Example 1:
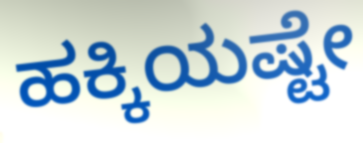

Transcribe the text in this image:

ಹಕ್ಕಿಯಷ್ಟೇ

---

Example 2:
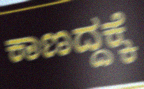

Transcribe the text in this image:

ಕಾಣದ್ದಕ್ಕೆ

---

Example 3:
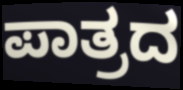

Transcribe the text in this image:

ಪಾತ್ರದ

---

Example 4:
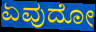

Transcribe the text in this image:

ಏವುದೋ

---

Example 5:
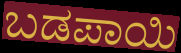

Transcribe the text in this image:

ಬಡಪಾಯಿ